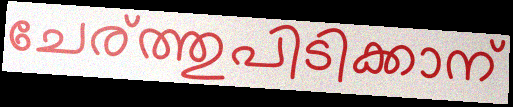
ചേര്ത്തുപിടിക്കാന്